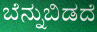
ಬೆನ್ನುಬಿಡದೆ